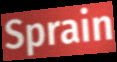
Sprain